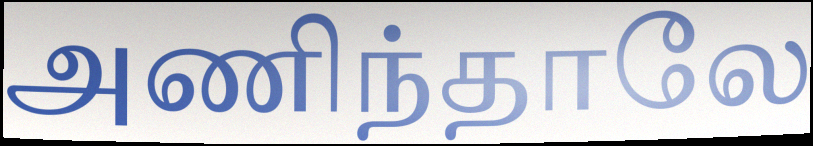
அணிந்தாலே